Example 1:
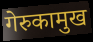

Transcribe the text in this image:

गेरुकामुख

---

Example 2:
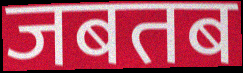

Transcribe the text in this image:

जबतब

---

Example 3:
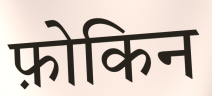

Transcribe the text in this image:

फ़ोकिन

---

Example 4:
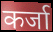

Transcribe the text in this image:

कर्जा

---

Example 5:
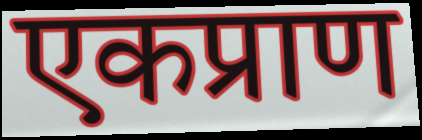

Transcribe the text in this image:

एकप्राण